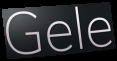
Gele